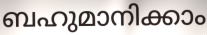
ബഹുമാനിക്കാം